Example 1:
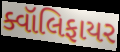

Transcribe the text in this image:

ક્વૉલિફાયર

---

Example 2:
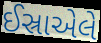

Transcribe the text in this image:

ઈસ્રાએલે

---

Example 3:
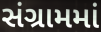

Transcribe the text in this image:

સંગ્રામમાં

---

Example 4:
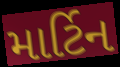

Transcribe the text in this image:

માર્ટિન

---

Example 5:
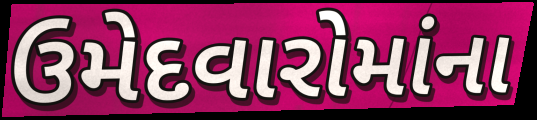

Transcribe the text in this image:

ઉમેદવારોમાંના